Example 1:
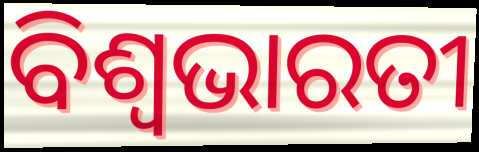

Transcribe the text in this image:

ବିଶ୍ୱଭାରତୀ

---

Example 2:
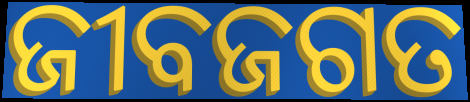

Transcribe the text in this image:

ଜୀବଜଗତ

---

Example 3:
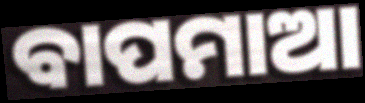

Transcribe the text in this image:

ବାପମାଆ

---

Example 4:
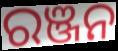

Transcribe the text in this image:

ରଞ୍ଜନ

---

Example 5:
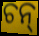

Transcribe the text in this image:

ଚନ୍